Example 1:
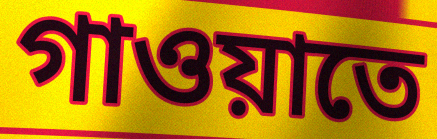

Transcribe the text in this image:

গাওয়াতে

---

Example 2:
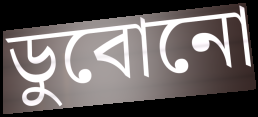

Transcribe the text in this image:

ডুবোনো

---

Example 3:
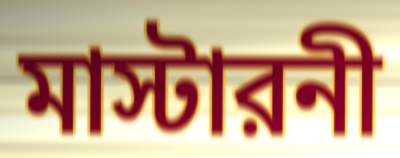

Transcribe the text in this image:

মাস্টারনী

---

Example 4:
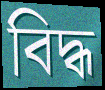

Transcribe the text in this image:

বিদ্ধ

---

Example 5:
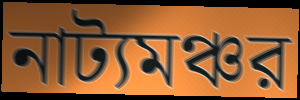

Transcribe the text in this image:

নাট্যমঞ্চর